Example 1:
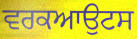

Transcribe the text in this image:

ਵਰਕਆਉਟਸ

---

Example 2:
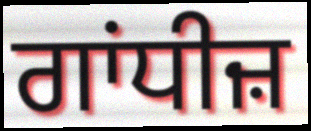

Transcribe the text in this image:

ਗਾਂਧੀਜ਼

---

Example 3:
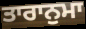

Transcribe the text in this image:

ਤਾਰਾਨੁਮਾ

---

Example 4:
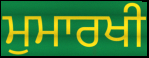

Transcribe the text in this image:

ਮੁਮਾਰਖੀ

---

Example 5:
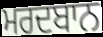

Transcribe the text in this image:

ਮਰਦਬਾਨ